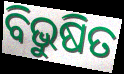
ବିଭୁଷିତ